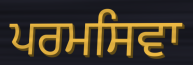
ਪਰਮਸਿਵਾ